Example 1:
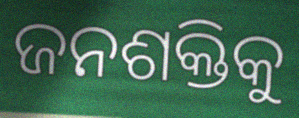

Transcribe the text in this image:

ଜନଶକ୍ତିକୁ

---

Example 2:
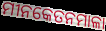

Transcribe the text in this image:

ମୀନକେତନମାଳା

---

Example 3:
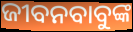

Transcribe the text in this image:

ଜୀବନବାବୁଙ୍କ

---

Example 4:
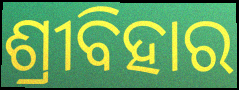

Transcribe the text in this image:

ଶ୍ରୀବିହାର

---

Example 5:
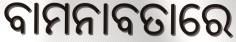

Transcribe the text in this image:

ବାମନାବତାରେ